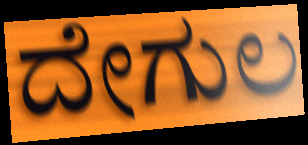
ದೇಗುಲ